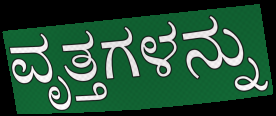
ವೃತ್ತಗಳನ್ನು